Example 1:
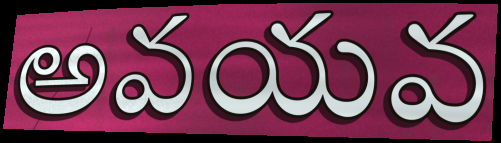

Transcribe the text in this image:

అవయవ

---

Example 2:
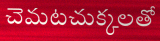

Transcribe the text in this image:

చెమటచుక్కలతో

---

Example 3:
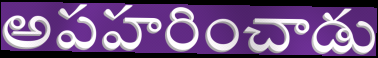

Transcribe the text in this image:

అపహరించాడు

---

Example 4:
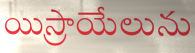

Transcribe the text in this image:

యిస్రాయేలును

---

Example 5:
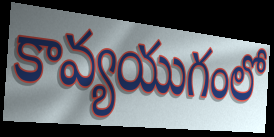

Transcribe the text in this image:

కావ్యయుగంలో